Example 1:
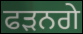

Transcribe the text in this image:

ਫੜਨਗੇ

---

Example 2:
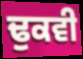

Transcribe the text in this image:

ਢੁਕਵੀ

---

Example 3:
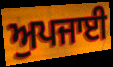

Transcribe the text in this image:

ਅੁਪਜਾਈ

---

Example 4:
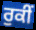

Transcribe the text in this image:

ਰੁਕੀਂ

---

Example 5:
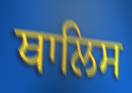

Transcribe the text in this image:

ਥਾਲਿਸ